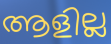
ആളില്ല